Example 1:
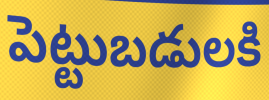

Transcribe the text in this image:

పెట్టుబడులకి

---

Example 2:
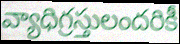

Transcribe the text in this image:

వ్యాధిగ్రస్తులందరికీ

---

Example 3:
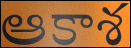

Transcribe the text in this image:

ఆకాశ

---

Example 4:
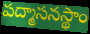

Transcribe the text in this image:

పద్మాసనస్థాం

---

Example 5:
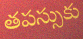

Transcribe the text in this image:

తపస్సుకు